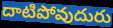
దాటిపోవుదురు